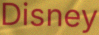
Disney